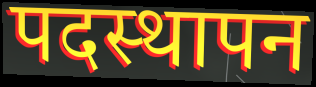
पदस्थापन